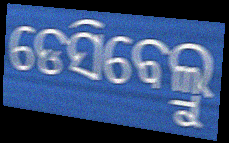
ଡେସିବେଲ୍ରୁ